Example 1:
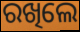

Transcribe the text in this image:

ରଖିଲେ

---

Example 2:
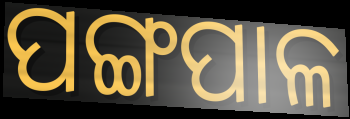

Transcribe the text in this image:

ପଙ୍ଗପାଳ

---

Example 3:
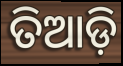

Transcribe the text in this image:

ତିଆଡ଼ି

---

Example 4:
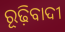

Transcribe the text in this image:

ରୂଢ଼ିବାଦୀ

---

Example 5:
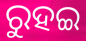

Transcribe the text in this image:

ରୁହଇ